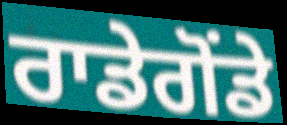
ਰਾਡੇਗੋਂਡੇ